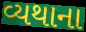
વ્યથાના